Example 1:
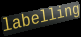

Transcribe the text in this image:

labelling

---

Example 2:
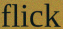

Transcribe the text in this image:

flick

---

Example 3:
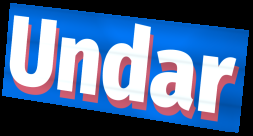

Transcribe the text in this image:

Undar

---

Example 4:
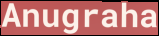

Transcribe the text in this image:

Anugraha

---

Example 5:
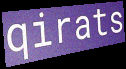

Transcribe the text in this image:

qirats